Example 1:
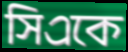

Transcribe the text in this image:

সিএকে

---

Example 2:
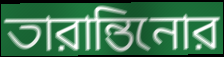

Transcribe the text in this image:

তারান্তিনোর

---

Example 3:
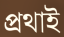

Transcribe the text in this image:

প্রথাই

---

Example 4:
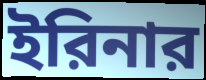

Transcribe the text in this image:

ইরিনার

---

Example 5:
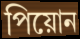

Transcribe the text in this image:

পিয়োন